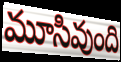
మూసివుంది